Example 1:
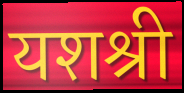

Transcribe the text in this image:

यशश्री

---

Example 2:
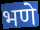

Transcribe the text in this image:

भणे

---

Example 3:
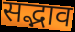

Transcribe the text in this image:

सद्भाव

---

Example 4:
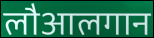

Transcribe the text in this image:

लौआलगान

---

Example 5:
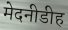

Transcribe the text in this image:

मेदनीडीह